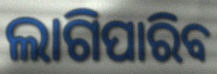
ଲାଗିପାରିବ